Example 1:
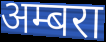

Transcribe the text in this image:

अम्बरा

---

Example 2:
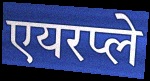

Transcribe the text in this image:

एयरप्ले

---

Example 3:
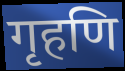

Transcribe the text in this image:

गृहणि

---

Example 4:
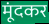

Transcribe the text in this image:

मूंदकर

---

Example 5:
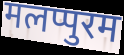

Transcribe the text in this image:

मलप्पुरम